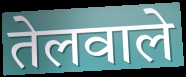
तेलवाले